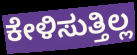
ಕೇಳಿಸುತ್ತಿಲ್ಲ